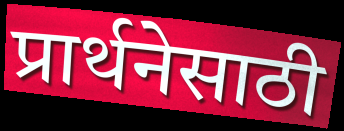
प्रार्थनेसाठी